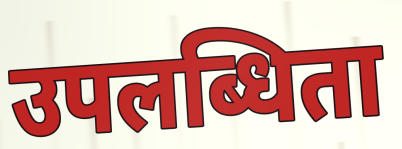
उपलब्धिता